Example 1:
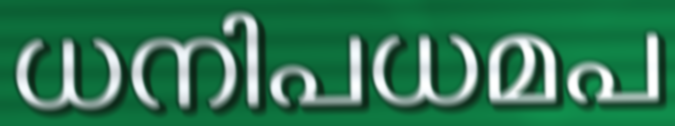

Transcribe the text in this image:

ധനിപധമപ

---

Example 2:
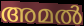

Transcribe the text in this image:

അമൽ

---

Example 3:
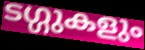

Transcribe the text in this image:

ടഗ്ഗുകളും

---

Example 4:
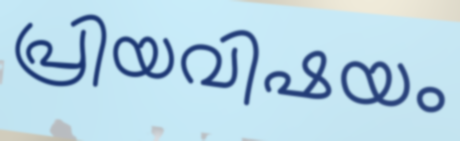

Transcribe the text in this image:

പ്രിയവിഷയം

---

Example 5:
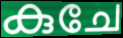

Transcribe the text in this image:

കുചേ